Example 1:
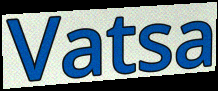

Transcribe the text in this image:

Vatsa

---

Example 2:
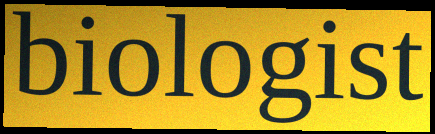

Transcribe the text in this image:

biologist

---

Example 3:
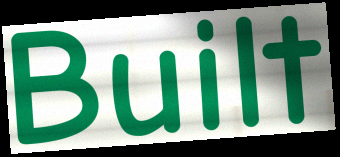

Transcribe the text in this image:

Built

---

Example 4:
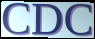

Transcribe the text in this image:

CDC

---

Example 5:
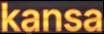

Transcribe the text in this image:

kansa